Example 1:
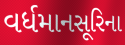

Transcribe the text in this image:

વર્ધમાનસૂરિના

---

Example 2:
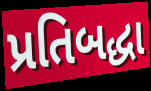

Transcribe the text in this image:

પ્રતિબદ્ધા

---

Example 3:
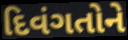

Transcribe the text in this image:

દિવંગતોને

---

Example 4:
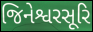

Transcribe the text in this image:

જિનેશ્વરસૂરિ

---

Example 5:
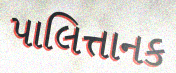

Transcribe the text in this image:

પાલિત્તાનક